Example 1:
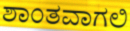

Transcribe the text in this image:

ಶಾಂತವಾಗಲಿ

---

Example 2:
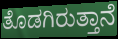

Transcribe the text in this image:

ತೊಡಗಿರುತ್ತಾನೆ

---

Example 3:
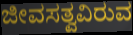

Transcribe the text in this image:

ಜೀವಸತ್ವವಿರುವ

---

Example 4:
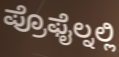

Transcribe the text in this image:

ಪ್ರೊಫೈಲ್ನಲ್ಲಿ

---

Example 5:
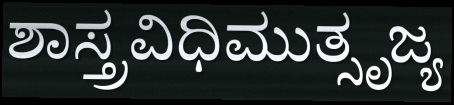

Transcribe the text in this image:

ಶಾಸ್ತ್ರವಿಧಿಮುತ್ಸೃಜ್ಯ